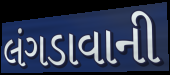
લંગડાવાની